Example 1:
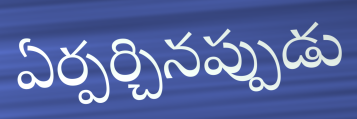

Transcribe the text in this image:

ఏర్పర్చినప్పుడు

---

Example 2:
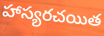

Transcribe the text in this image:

హాస్యరచయిత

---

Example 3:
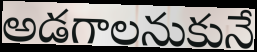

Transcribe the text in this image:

అడగాలనుకునే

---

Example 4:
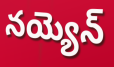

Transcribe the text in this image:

నయ్యెన్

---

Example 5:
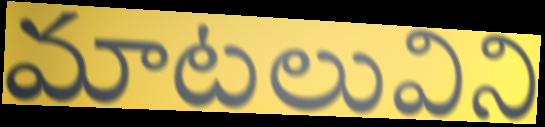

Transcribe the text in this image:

మాటలువిని